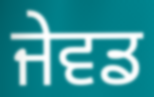
ਜੇਵਡ